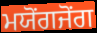
ਮਯੋਂਗਜੋਂਗ